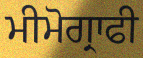
ਮੀਮੋਗ੍ਰਾਫੀ